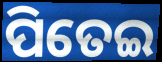
ପିତେଇ